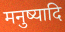
मनुष्यादि